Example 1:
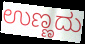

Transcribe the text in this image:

ಉಣ್ಣದು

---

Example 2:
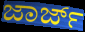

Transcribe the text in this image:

ಜಾರ್ಜ್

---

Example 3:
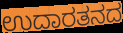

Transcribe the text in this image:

ಉದಾರತನದ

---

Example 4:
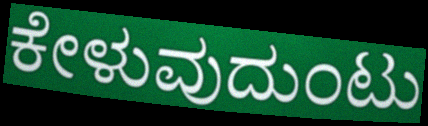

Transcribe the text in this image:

ಕೇಳುವುದುಂಟು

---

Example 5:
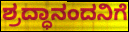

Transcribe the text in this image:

ಶ್ರದ್ಧಾನಂದನಿಗೆ